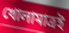
খোলামাত্রই